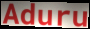
Aduru